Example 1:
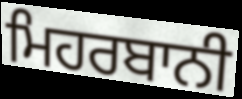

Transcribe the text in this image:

ਮਿਹਰਬਾਨੀ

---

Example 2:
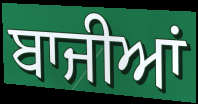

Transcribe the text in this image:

ਬਾਜੀਆਂ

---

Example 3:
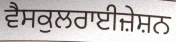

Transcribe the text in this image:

ਵੈਸਕੁਲਰਾਈਜ਼ੇਸ਼ਨ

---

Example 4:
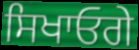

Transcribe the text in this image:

ਸਿਖਾਓਗੇ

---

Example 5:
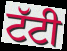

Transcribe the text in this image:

ਟੱਟੀ